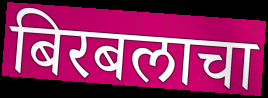
बिरबलाचा